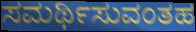
ಸಮರ್ಥಿಸುವಂತಹ